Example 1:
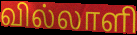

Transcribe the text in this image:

வில்லாளி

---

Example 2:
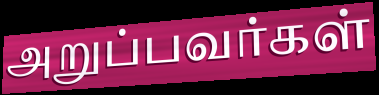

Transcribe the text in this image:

அறுப்பவர்கள்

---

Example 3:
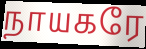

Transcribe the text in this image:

நாயகரே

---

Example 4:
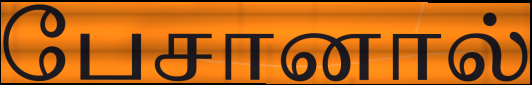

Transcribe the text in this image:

பேசானால்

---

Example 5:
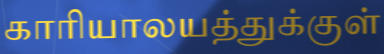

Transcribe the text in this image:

காரியாலயத்துக்குள்